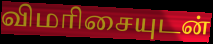
விமரிசையுடன்